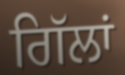
ਗਿੱਲਾਂ